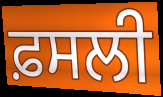
ਫ਼ਸਲੀ